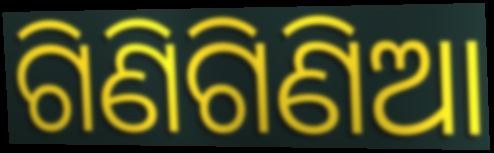
ଗିଣିଗିଣିଆ